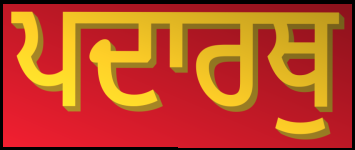
ਪਦਾਰਥੁ